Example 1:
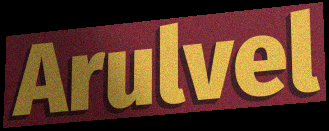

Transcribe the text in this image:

Arulvel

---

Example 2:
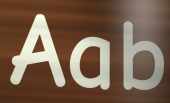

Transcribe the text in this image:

Aab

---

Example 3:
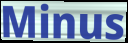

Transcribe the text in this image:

Minus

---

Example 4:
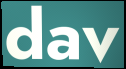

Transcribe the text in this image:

dav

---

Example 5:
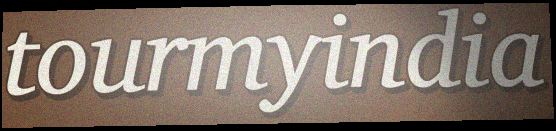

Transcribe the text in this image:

tourmyindia